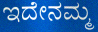
ಇದೇನಮ್ಮ